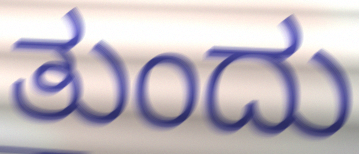
ತುಂದು